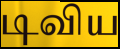
டிவிய